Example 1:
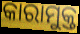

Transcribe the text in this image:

କାରାମୁକ୍ତ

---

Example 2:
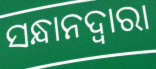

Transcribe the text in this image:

ସନ୍ଧାନଦ୍ୱାରା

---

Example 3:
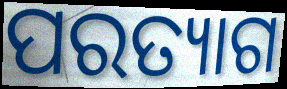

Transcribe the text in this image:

ପରତ୍ୟାଗ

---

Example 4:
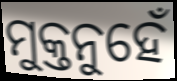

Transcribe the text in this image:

ମୁକ୍ତନୁହେଁ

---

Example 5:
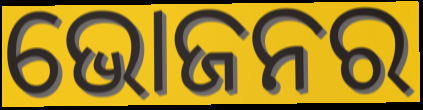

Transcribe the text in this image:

ଭୋଜନର